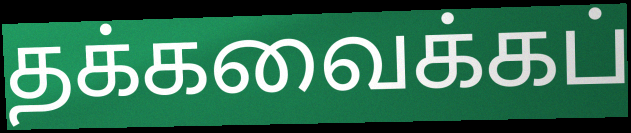
தக்கவைக்கப்